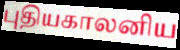
புதியகாலனிய